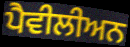
ਪੈਵੀਲੀਅਨ